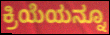
ಕ್ರಿಯೆಯನ್ನೂ